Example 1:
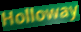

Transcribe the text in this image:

Holloway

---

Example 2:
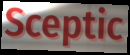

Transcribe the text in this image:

Sceptic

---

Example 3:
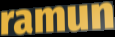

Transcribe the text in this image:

ramun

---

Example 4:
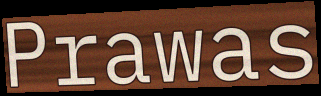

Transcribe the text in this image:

Prawas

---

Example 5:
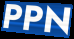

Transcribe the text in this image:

PPN